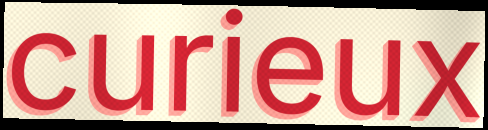
curieux